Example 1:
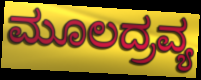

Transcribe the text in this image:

ಮೂಲದ್ರವ್ಯ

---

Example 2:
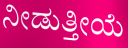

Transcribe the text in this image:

ನೀಡುತ್ತೀಯೆ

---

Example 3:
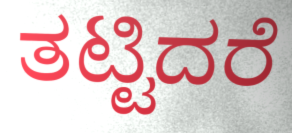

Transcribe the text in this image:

ತಟ್ಟಿದರೆ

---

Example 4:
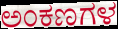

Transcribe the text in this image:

ಅಂಕಣಗಳ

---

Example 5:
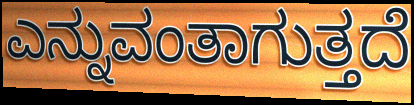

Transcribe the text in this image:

ಎನ್ನುವಂತಾಗುತ್ತದೆ